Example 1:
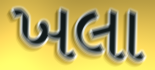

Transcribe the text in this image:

ખલા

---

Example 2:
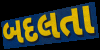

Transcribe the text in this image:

બદલતા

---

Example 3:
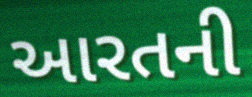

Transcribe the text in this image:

આરતની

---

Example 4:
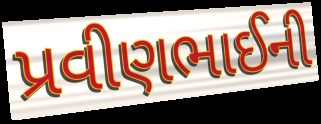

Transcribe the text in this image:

પ્રવીણભાઈની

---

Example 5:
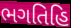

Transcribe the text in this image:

ભગતિહિ